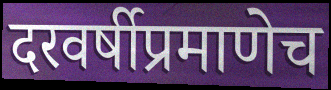
दरवर्षीप्रमाणेच